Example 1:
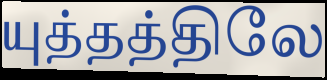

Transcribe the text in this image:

யுத்தத்திலே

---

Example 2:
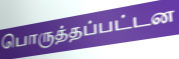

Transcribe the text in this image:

பொருத்தப்பட்டன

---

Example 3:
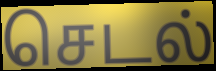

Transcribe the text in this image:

செடல்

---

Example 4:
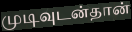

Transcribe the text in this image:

முடிவுடன்தான்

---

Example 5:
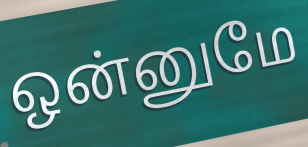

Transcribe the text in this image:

ஒன்னுமே